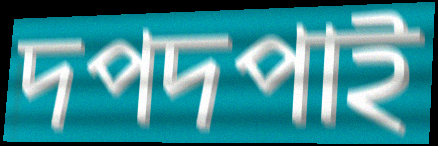
দপদপাই